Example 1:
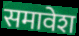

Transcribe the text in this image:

समावेश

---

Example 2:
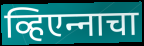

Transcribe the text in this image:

व्हिएन्नाचा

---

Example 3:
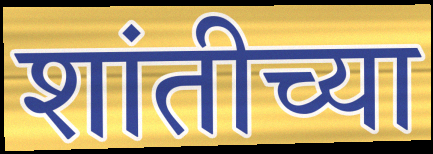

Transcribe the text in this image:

शांतीच्या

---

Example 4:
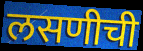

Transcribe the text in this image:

लसणीची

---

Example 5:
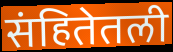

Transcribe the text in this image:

संहितेतली